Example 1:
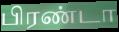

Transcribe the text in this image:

பிரண்டா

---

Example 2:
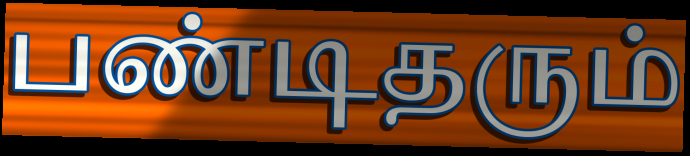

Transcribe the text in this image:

பண்டிதரும்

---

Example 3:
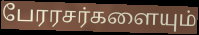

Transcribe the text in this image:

பேரரசர்களையும்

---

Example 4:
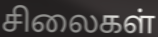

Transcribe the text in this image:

சிலைகள்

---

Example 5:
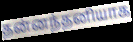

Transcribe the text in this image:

தன்னந்தனியாக